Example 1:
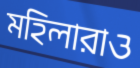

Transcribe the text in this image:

মহিলারাও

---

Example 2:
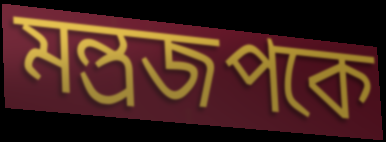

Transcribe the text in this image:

মন্ত্রজপকে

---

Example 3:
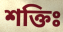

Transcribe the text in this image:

শক্তিঃ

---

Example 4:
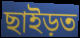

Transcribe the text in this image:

ছাইড়ত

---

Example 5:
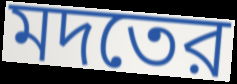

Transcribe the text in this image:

মদতের